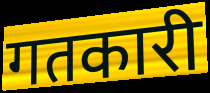
गतकारी